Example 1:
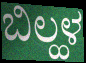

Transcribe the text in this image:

ಬಿಲ್ಹಳ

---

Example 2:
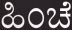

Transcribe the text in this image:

ಹಿಂಚೆ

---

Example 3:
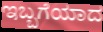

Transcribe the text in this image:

ಇಬ್ಬಗೆಯಾದ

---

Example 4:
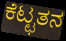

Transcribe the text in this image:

ಕೆಟ್ಟತನ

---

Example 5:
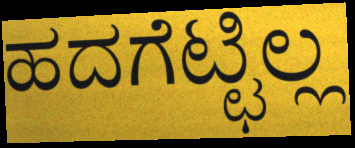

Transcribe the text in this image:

ಹದಗೆಟ್ಟಿಲ್ಲ